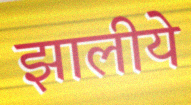
झालीये